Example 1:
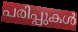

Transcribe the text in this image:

പരിപ്പുകൾ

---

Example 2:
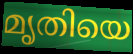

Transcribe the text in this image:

മൃതിയെ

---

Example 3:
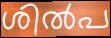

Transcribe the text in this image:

ശിൽപ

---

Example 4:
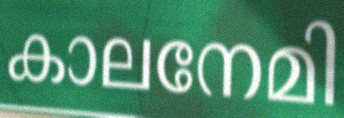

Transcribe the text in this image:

കാലനേമി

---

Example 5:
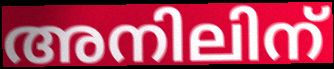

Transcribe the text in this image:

അനിലിന്